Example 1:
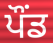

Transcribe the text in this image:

ਪੌਂਡ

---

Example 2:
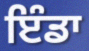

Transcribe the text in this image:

ਇੰਡਾ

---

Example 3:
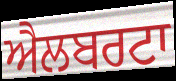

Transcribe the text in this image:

ਐਲਬਰਟਾ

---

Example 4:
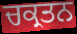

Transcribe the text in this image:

ਚਕ੍ਰਤਨ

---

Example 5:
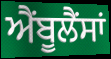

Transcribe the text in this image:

ਐੰਬੂਲੈਂਸਾਂ